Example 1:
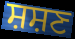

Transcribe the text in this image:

ਸ਼ਸ਼ਣ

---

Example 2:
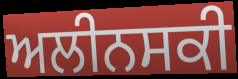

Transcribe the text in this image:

ਅਲੀਨਸਕੀ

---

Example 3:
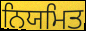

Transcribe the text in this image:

ਨਿਯਮਿਤ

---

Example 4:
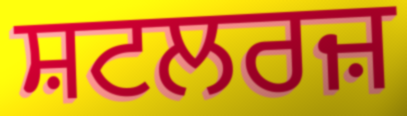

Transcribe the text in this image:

ਸ਼ਟਲਰਜ਼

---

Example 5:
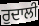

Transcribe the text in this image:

ਰੁਦਾਲੀ